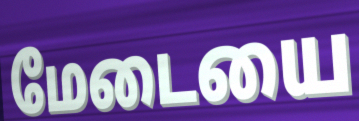
மேடையை